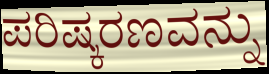
ಪರಿಷ್ಕರಣವನ್ನು